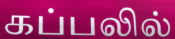
கப்பலில்